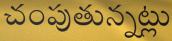
చంపుతున్నట్లు